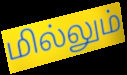
மில்லும்